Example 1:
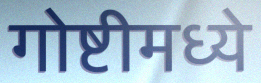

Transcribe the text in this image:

गोष्टीमध्ये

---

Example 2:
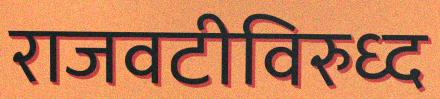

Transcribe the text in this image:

राजवटीविरुध्द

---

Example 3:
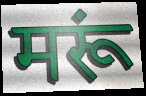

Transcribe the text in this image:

मरूं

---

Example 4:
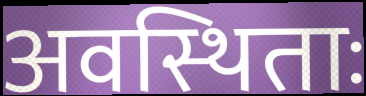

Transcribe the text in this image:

अवस्थिताः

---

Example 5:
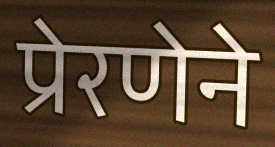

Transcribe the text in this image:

प्रेरणेने